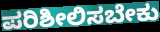
ಪರಿಶೀಲಿಸಬೇಕು